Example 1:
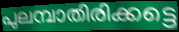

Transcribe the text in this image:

പുലമ്പാതിരിക്കട്ടെ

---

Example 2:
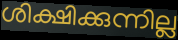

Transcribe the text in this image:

ശിക്ഷിക്കുന്നില്ല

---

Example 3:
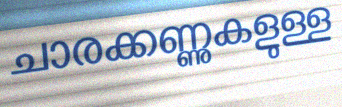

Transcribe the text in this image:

ചാരക്കണ്ണുകളുള്ള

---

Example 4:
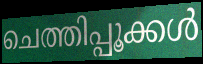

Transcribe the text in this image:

ചെത്തിപ്പൂക്കൾ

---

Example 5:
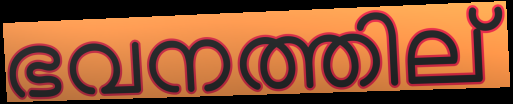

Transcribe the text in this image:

ഭവനത്തില്